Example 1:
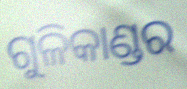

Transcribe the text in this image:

ଗୁଳିକାଣ୍ଡର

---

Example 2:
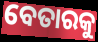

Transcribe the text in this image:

ବେତାରକୁ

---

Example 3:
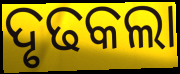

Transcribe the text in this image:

ଦୃଢକଲା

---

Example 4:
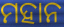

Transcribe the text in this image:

ମହାନ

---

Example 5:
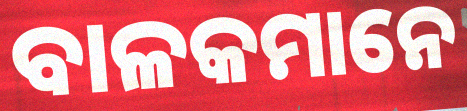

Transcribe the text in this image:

ବାଳକମାନେ